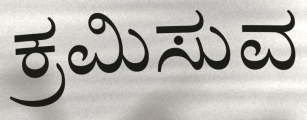
ಕ್ರಮಿಸುವ